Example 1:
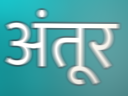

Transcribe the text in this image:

अंतूर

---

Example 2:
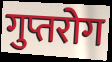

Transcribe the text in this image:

गुप्तरोग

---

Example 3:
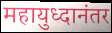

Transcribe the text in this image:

महायुध्दानंतर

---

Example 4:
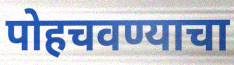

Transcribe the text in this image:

पोहचवण्याचा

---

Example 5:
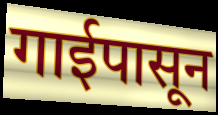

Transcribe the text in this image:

गाईपासून